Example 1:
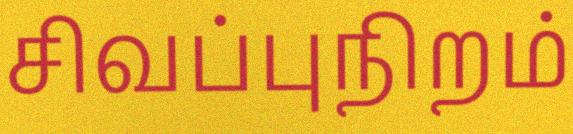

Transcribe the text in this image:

சிவப்புநிறம்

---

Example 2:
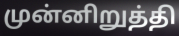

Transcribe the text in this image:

முன்னிறுத்தி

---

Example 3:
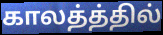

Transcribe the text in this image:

காலத்த்தில்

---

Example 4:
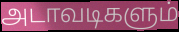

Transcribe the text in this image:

அடாவடிகளும்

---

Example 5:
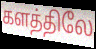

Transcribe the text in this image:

களத்திலே